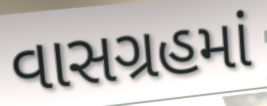
વાસગ્રહમાં